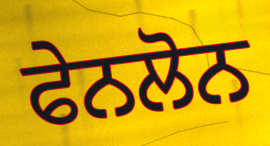
ਫੇਨਲੋਨ